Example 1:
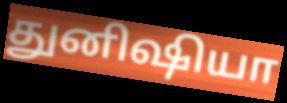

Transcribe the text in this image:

துனிஷியா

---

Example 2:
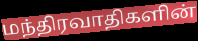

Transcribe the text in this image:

மந்திரவாதிகளின்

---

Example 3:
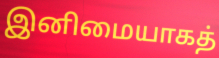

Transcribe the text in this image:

இனிமையாகத்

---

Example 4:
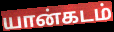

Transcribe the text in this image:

யான்கடம்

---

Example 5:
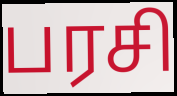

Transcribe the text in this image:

பரசி